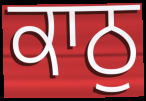
ਕਾਠੁ